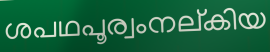
ശപഥപൂര്വംനല്കിയ